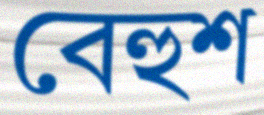
বেহুশ